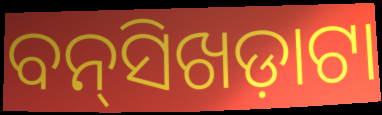
ବନ୍‌ସିଖଡ଼ାଟା